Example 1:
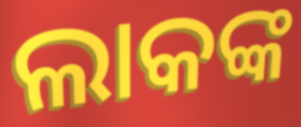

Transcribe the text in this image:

ଲାକଙ୍କ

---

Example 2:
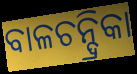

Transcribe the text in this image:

ବାଳଚନ୍ଦ୍ରିକା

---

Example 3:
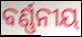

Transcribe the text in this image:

ବର୍ଣ୍ଣନୀୟ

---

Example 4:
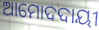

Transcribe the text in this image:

ଆମୋଦଦାୟୀ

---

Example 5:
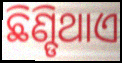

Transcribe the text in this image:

ଛିଣ୍ଡିଥାଏ